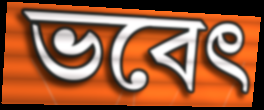
ভবেৎ